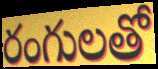
రంగులతో